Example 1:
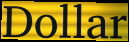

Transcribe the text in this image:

Dollar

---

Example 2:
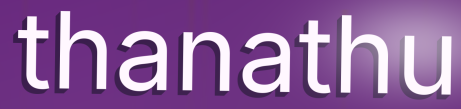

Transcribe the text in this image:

thanathu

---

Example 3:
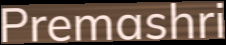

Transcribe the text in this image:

Premashri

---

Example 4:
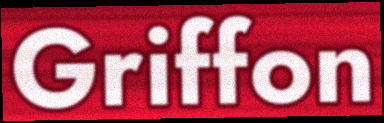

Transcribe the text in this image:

Griffon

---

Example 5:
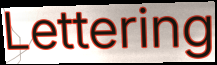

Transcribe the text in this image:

Lettering